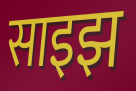
साइझ